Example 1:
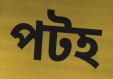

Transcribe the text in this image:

পটহ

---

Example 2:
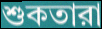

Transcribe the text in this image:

শুকতারা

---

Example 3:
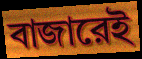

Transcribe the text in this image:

বাজারেই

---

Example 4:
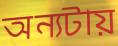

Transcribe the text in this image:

অন্যটায়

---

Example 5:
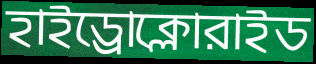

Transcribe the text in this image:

হাইড্রোক্লোরাইড